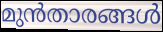
മുൻതാരങ്ങൾ